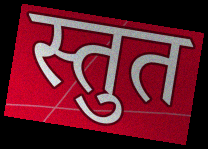
स्तुत